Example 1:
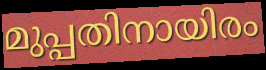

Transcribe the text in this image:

മുപ്പതിനായിരം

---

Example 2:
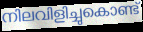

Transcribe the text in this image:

നിലവിളിച്ചുകൊണ്ട്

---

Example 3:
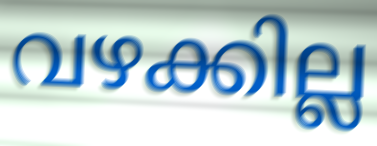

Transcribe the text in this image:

വഴക്കില്ല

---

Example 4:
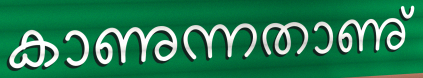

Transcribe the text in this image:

കാണുന്നതാണു്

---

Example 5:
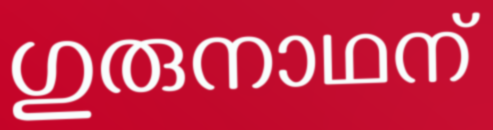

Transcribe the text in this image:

ഗുരുനാഥന്